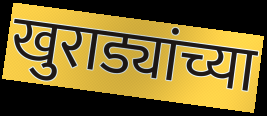
खुराड्यांच्या